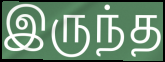
இருந்த